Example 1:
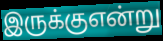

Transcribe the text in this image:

இருக்குஎன்று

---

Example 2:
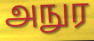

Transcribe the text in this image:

அநுர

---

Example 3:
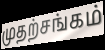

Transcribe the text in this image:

முதற்சங்கம்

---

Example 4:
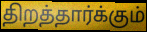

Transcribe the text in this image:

திறத்தார்க்கும்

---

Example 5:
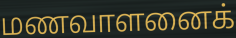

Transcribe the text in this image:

மணவாளனைக்